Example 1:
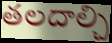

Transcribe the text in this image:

తలదాల్చి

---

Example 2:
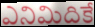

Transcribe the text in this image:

ఎనిమిదికే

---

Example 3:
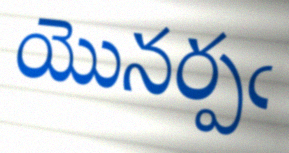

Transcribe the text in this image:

యొనర్పఁ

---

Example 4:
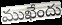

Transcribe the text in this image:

ముఖేందు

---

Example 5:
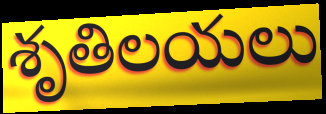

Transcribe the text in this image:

శృతిలయలు